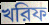
খরিফ